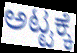
ಅಟ್ಟಕ್ಕೆ